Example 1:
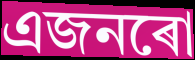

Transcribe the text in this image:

এজনৰো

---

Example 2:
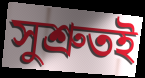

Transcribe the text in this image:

সুশ্ৰুতই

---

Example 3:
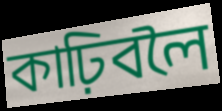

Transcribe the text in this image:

কাঢ়িবলৈ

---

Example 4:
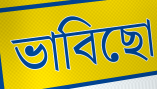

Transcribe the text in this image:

ভাবিছো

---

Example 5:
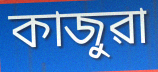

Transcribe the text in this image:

কাজুৱা